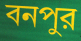
বনপুর